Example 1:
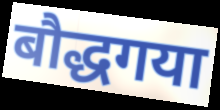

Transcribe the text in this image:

बौद्धगया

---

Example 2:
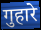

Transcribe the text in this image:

गुहारे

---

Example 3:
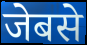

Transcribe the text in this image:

जेबसे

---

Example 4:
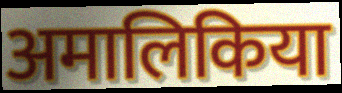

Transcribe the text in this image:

अमालिकिया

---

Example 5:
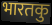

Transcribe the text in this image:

भारतकु